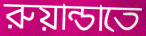
রুয়ান্ডাতে